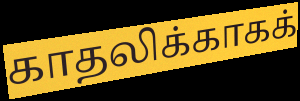
காதலிக்காகக்